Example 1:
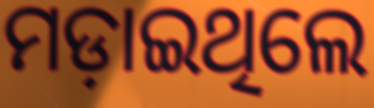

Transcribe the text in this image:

ମଡ଼ାଇଥିଲେ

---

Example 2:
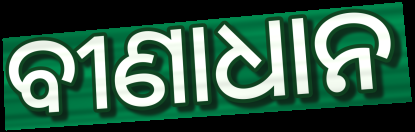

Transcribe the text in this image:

ବୀଣାଧାନ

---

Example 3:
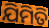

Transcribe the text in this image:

ଯିମିତି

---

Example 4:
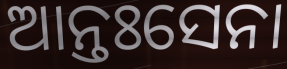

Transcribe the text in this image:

ଆନ୍ତଃସେନା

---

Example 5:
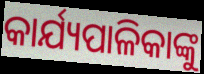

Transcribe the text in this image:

କାର୍ଯ୍ୟପାଳିକାଙ୍କୁ